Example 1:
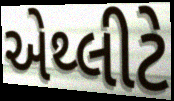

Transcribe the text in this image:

એથ્લીટે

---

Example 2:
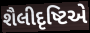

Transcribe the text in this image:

શૈલીદૃષ્ટિએ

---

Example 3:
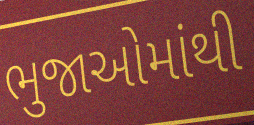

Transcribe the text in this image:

ભુજાઓમાંથી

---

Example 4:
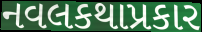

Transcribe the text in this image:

નવલકથાપ્રકાર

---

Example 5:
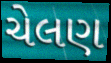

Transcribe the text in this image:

ચેલણ